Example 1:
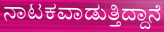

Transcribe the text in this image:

ನಾಟಕವಾಡುತ್ತಿದ್ದಾನೆ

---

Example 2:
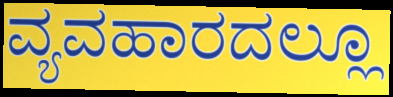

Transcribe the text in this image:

ವ್ಯವಹಾರದಲ್ಲೂ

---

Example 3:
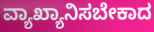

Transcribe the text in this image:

ವ್ಯಾಖ್ಯಾನಿಸಬೇಕಾದ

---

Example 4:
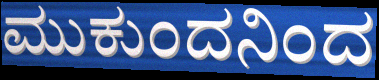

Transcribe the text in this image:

ಮುಕುಂದನಿಂದ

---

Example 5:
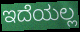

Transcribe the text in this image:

ಇದೆಯಲ್ಲ